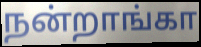
நன்றாங்கா